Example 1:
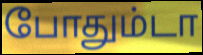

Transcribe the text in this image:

போதும்டா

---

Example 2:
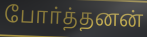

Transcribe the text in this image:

போர்த்தனன்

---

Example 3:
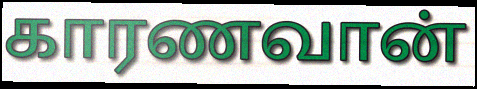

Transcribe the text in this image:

காரணவான்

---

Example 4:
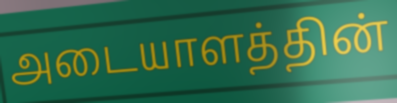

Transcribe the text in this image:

அடையாளத்தின்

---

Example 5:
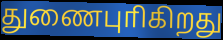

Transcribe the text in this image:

துணைபுரிகிறது